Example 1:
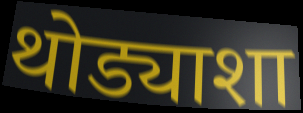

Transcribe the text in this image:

थोड्याशा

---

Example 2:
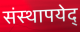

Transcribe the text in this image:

संस्थापयेद्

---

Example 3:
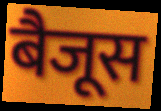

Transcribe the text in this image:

बैजूस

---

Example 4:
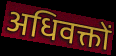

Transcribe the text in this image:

अधिवक्तों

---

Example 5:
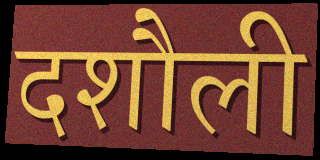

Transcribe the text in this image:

दशौली